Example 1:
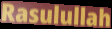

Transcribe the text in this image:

Rasulullah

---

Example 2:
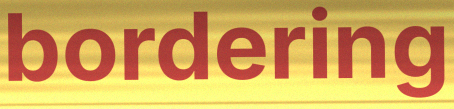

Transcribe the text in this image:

bordering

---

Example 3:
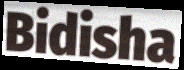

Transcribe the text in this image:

Bidisha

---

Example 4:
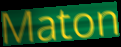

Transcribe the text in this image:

Maton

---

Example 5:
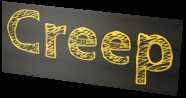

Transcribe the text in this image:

Creep